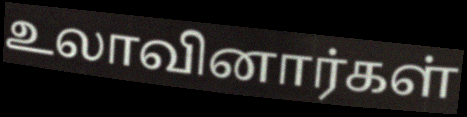
உலாவினார்கள்